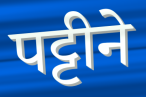
पट्टीने